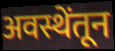
अवस्थेंतून